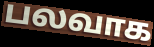
பலவாக